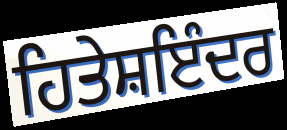
ਹਿਤੇਸ਼ਇੰਦਰ